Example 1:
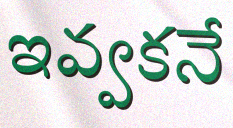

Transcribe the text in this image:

ఇవ్వకనే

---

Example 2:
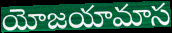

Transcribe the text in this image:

యోజయామాస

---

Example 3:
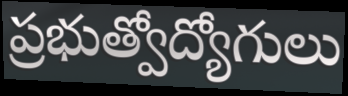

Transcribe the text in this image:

ప్రభుత్వోద్యోగులు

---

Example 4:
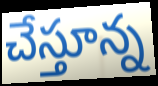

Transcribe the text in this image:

చేస్తూన్న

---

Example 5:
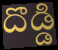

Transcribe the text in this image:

దొడ్డి